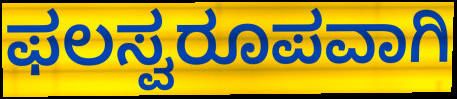
ಫಲಸ್ವರೂಪವಾಗಿ